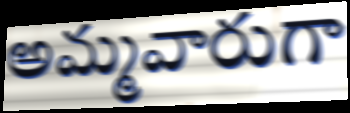
అమ్మవారుగా